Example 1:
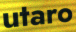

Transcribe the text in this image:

utaro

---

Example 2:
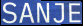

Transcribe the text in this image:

SANJE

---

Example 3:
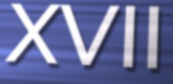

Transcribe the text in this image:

XVII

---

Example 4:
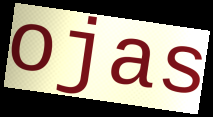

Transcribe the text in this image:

ojas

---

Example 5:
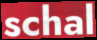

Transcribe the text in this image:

schal